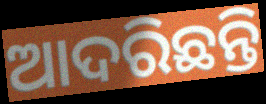
ଆଦରିଛନ୍ତି